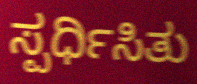
ಸ್ಪರ್ಧಿಸಿತು